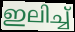
ഇലിച്ച്